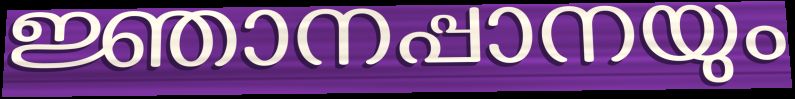
ജ്ഞാനപ്പാനയും